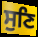
ਸੁਣਿ